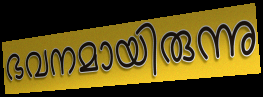
ഭവനമായിരുന്നു